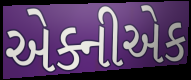
એક્નીએક